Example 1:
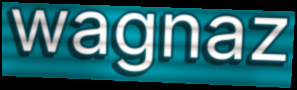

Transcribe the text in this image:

wagnaz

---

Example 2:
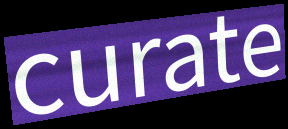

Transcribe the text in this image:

curate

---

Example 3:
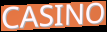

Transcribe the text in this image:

CASINO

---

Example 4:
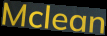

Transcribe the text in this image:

Mclean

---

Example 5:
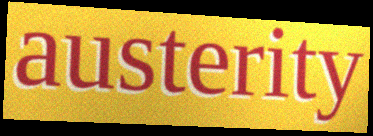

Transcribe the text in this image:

austerity